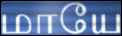
மாயே